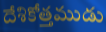
దేశికోత్తముడు